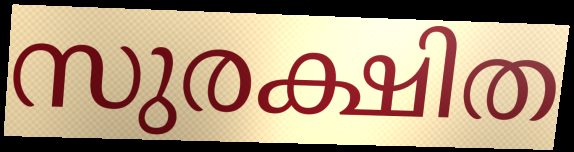
സുരക്ഷിത